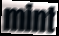
mint